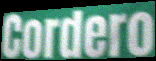
Cordero